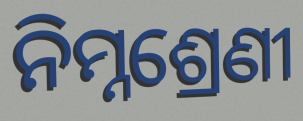
ନିମ୍ନଶ୍ରେଣୀ